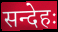
सन्देहः